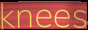
knees